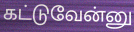
கட்டுவேன்னு